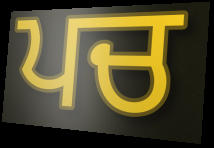
ਪਚ